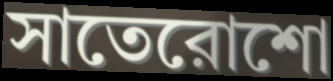
সাতেরোশো